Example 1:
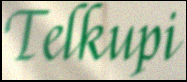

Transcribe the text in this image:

Telkupi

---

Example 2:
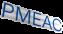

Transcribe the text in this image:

PMEAC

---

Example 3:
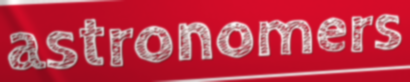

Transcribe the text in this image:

astronomers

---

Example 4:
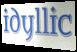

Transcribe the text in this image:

idyllic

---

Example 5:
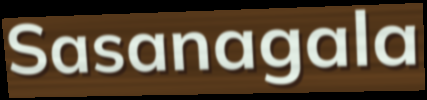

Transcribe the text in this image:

Sasanagala